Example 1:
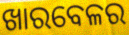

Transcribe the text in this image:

ଖାରବେଳର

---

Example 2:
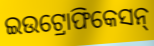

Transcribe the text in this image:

ଇଉଟ୍ରୋଫିକେସନ୍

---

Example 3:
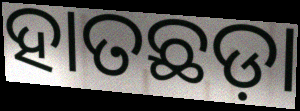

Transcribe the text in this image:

ହାତଛଡ଼ା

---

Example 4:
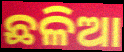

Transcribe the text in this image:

ଛଳିଆ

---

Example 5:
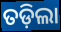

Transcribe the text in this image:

ତଡ଼ିଲା